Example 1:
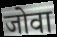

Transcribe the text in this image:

जोवा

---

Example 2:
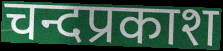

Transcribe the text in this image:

चन्दप्रकाश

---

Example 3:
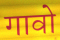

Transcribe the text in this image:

गावो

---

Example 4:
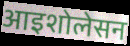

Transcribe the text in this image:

आइशोलेसन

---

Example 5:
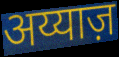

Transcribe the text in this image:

अय्याज़